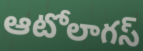
ఆటోలాగస్